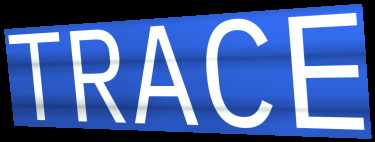
TRACE